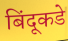
बिंदूकडे